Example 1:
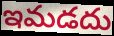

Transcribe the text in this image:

ఇమడదు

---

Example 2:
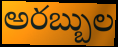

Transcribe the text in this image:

అరబ్బుల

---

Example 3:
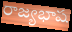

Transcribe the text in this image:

రాజ్యభాష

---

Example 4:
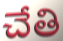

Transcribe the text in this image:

చేతి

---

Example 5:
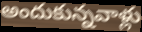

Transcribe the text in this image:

అందుకున్నవాళ్లు